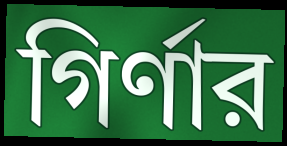
গির্ণার